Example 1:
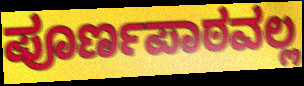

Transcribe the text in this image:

ಪೂರ್ಣಪಾಠವಲ್ಲ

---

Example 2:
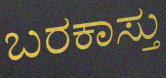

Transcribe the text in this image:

ಬರಕಾಸ್ತು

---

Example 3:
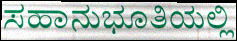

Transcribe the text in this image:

ಸಹಾನುಭೂತಿಯಲ್ಲಿ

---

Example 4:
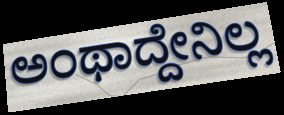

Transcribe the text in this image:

ಅಂಥಾದ್ದೇನಿಲ್ಲ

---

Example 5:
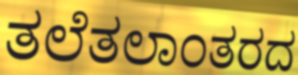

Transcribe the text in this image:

ತಲೆತಲಾಂತರದ